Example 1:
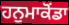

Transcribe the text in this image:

ਹਨੁਮਾਕੋਂਡਾ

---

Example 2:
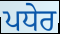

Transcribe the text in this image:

ਪਧੇਰ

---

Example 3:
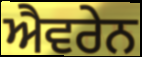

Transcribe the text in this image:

ਐਵਰੇਨ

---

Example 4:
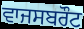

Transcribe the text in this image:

ਵਾਜਸਬਰੌਟ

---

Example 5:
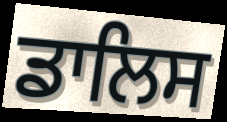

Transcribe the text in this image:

ਡਾਲਿਸ